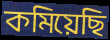
কমিয়েছি